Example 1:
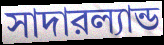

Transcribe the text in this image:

সাদারল্যান্ড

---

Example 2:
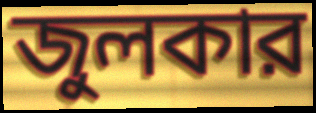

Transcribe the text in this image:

জুলকার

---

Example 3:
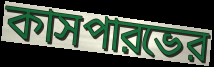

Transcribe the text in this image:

কাসপারভের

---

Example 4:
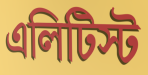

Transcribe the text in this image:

এলিটিস্ট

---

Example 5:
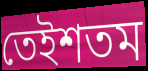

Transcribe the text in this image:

তেইশতম